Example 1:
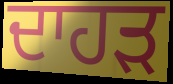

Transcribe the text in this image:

ਦਾਹੜ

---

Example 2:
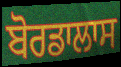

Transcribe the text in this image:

ਬੋਰਡਾਲਾਸ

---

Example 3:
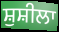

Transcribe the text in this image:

ਸ਼ੁਸ਼ੀਲਾ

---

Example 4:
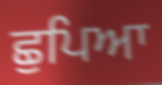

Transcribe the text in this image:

ਛੁਪਿਆ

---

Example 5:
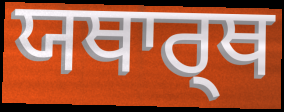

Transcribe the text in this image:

ਯਥਾਰ੍ਥ